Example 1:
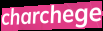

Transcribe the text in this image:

charchege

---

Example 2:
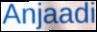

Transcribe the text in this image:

Anjaadi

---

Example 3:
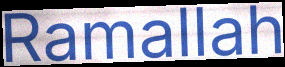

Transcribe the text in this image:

Ramallah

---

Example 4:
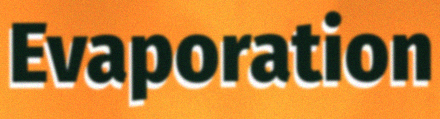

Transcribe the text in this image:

Evaporation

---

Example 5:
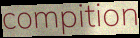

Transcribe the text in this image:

compition